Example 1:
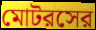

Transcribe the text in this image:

মোটরসের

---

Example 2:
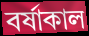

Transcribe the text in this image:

বর্ষাকাল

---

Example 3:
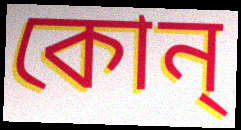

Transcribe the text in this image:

কোন্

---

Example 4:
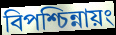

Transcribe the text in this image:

বিপশ্চিন্নায়ং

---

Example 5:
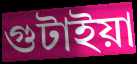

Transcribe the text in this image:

গুটাইয়া